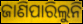
ଜାଣିପାରିଲୁନି